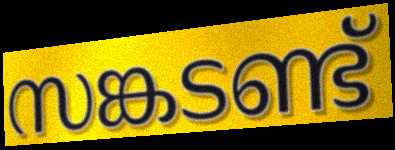
സങ്കടണ്ട്